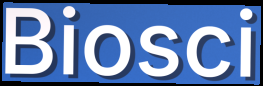
Biosci